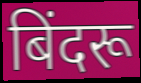
बिंदरू